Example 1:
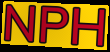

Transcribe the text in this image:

NPH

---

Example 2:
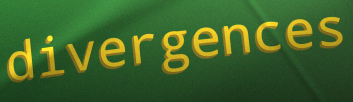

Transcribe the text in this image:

divergences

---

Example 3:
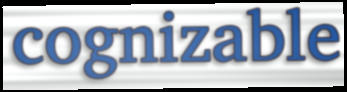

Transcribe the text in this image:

cognizable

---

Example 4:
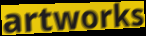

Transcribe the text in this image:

artworks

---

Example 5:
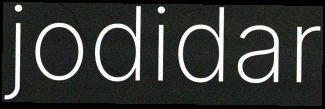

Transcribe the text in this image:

jodidar